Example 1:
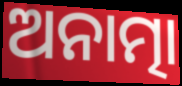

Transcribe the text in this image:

ଅନାତ୍ମା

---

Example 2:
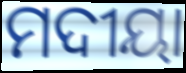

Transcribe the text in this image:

ମଦୀୟା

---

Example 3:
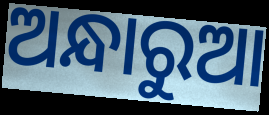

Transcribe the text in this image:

ଅନ୍ଧାରୁଆ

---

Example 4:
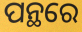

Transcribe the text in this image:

ପନ୍ଥରେ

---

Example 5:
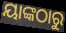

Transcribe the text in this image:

ୟାଙ୍କଠାରୁ